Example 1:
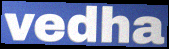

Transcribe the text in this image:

vedha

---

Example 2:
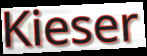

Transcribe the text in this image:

Kieser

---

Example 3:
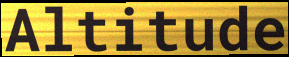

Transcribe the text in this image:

Altitude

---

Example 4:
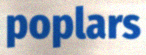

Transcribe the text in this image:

poplars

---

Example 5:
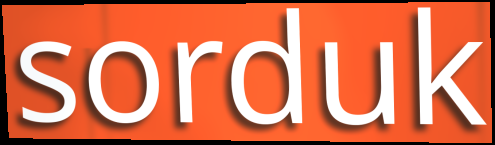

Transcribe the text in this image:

sorduk